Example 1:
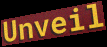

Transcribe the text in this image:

Unveil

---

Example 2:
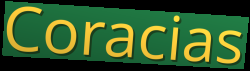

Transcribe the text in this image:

Coracias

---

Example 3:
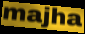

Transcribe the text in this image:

majha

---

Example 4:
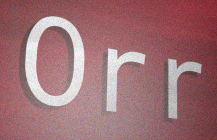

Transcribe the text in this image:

Orr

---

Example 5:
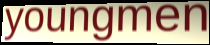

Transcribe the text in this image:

youngmen